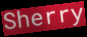
Sherry